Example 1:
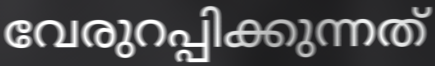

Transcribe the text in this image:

വേരുറപ്പിക്കുന്നത്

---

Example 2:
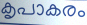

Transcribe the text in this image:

കൃപാകരം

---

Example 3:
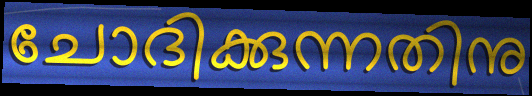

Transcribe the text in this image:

ചോദിക്കുന്നതിനു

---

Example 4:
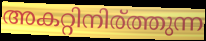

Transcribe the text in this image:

അകറ്റിനിര്ത്തുന്ന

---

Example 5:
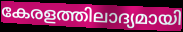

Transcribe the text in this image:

കേരളത്തിലാദ്യമായി